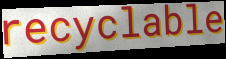
recyclable